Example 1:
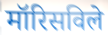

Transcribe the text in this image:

मॉरिसविले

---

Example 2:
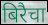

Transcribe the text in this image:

बिरैचा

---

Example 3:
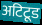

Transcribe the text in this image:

अटिटूड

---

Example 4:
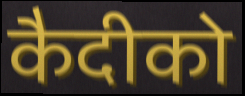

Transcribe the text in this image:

कैदीको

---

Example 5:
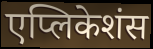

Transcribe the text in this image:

एप्लिकेशंस